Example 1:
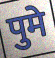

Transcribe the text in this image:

पुमे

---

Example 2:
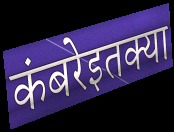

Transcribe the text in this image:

कंबरेइतक्या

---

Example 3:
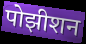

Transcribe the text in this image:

पोझीशन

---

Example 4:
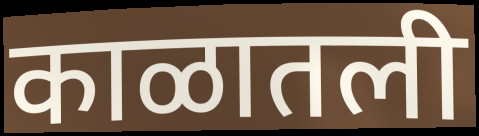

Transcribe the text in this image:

काळातली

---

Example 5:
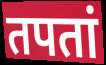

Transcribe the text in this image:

तपतां